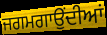
ਜਗਮਗਾਉਂਦੀਆਂ